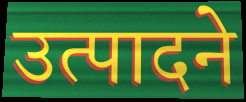
उत्पादने